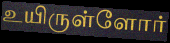
உயிருள்ளோர்